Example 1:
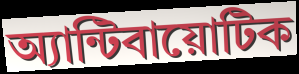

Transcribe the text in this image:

অ্যান্টিবায়োটিক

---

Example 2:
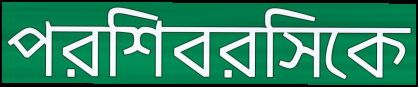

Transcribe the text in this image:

পরশিবরসিকে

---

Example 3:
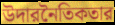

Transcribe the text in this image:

উদারনৈতিকতার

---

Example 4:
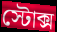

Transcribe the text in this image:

স্টোক্স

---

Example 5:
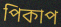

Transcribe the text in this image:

পিকাপ